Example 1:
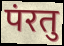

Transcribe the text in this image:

पंरतु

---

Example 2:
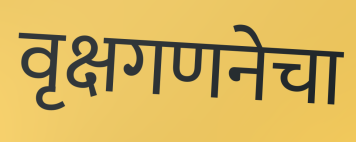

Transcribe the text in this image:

वृक्षगणनेचा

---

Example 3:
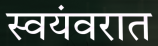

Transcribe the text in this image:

स्वयंवरात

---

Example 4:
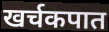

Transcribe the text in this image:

खर्चकपात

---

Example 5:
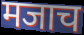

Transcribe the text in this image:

मजाच